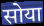
सोया